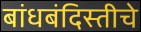
बांधबंदिस्तीचे